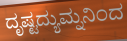
ದೃಷ್ಟದ್ಯುಮ್ನನಿಂದ